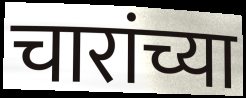
चारांच्या